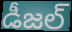
డీజల్